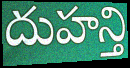
దుహన్తి